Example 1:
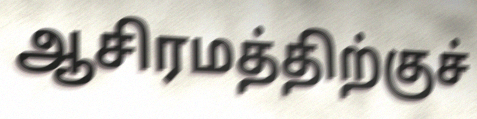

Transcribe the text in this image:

ஆசிரமத்திற்குச்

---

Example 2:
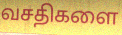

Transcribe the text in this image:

வசதிகளை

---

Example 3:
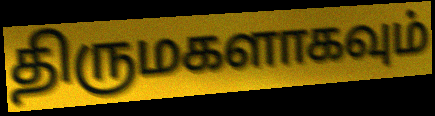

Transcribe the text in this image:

திருமகளாகவும்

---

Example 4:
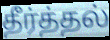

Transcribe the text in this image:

தீர்த்தல்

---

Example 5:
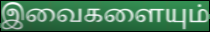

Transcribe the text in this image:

இவைகளையும்